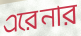
এরেনার